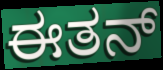
ಈತನ್